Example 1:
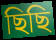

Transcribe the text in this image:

ছিছি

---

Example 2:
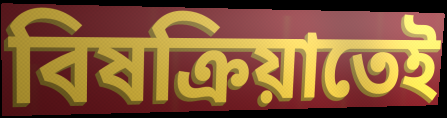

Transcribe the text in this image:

বিষক্রিয়াতেই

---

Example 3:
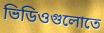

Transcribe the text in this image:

ভিডিওগুলোতে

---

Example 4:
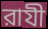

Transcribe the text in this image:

রাযী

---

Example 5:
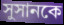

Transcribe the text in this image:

সুসানকে